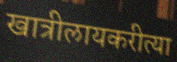
खात्रीलायकरीत्या